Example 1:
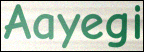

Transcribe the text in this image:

Aayegi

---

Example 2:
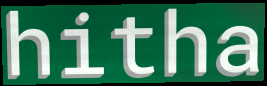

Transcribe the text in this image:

hitha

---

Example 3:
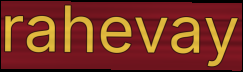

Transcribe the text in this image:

rahevay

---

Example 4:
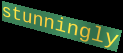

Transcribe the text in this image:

stunningly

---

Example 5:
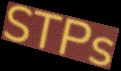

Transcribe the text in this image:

STPs